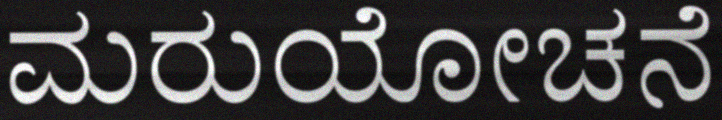
ಮರುಯೋಚನೆ